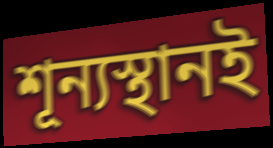
শূন্যস্থানই